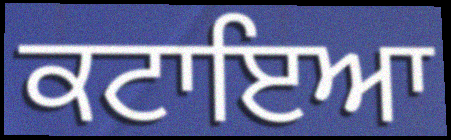
ਕਟਾਇਆ